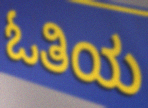
ಓತಿಯ